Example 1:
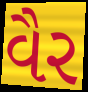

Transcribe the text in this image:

વૈર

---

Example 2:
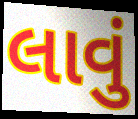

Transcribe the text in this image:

લાવું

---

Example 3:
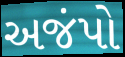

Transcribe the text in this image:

અજંપો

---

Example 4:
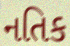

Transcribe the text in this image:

નતિક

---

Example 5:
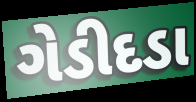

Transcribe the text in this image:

ગેડીદડા